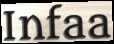
Infaa